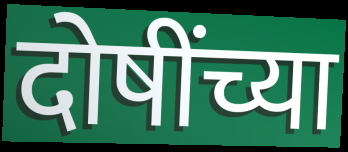
दोषींच्या